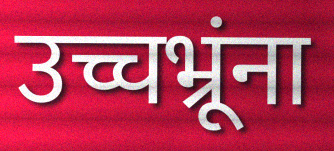
उच्चभ्रूंना